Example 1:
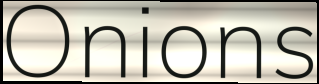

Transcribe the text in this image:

Onions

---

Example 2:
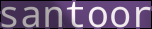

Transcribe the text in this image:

santoor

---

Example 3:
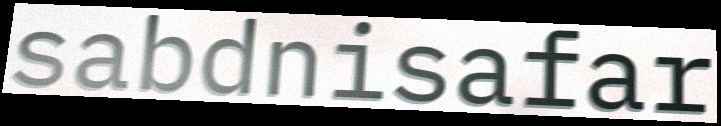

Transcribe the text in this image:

sabdnisafar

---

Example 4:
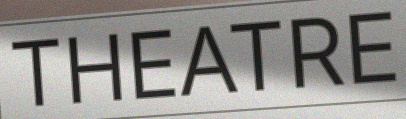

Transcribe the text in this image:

THEATRE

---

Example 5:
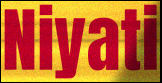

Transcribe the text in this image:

Niyati